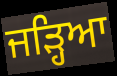
ਜੜ੍ਹਿਆ